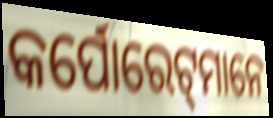
କର୍ପୋରେଟ୍‌ମାନେ